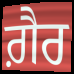
ਗ਼ੈਰ